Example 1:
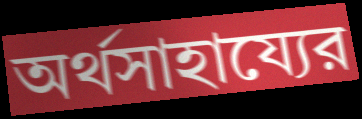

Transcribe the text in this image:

অর্থসাহায্যের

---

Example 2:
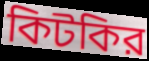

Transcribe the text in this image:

কিটকির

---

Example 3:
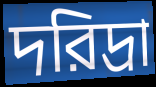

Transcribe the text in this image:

দরিদ্রা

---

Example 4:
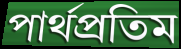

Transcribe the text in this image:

পার্থপ্রতিম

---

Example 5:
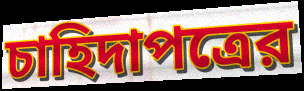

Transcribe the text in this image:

চাহিদাপত্রের